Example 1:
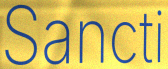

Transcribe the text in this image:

Sancti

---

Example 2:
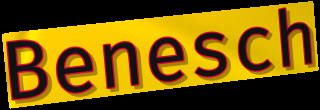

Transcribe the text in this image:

Benesch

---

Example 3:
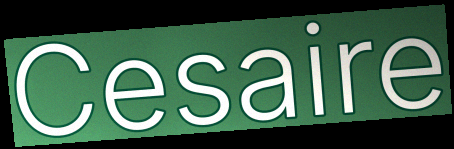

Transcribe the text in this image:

Cesaire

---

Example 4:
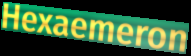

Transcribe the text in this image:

Hexaemeron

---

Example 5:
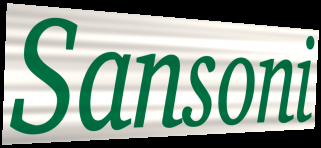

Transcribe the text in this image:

Sansoni